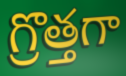
గ్రొత్తగా